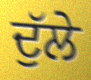
ਦੁੱਲੇ